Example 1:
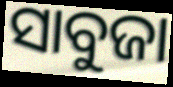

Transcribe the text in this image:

ସାବୁଜା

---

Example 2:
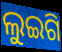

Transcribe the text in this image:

ଲୁଇଗି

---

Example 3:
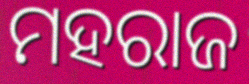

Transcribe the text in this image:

ମହରାଜ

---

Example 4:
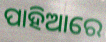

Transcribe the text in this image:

ପାହିଆରେ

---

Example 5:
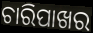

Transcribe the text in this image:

ଚାରିପାଖର